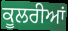
ਕੂਲਰੀਆਂ